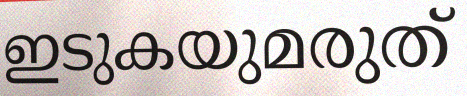
ഇടുകയുമരുത്